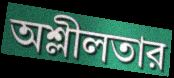
অশ্লীলতার